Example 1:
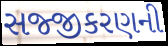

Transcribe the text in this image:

સજ્જીકરણની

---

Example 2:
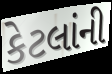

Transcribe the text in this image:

કેટલાંની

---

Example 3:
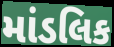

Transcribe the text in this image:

માંડલિક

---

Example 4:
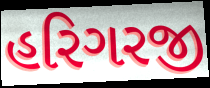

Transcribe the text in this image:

હરિગરજી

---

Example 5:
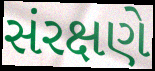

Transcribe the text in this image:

સંરક્ષણે